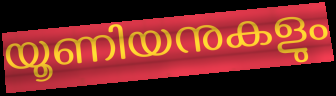
യൂണിയനുകളും